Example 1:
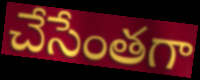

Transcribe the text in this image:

చేసేంతగా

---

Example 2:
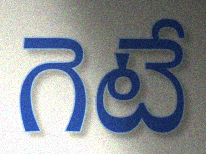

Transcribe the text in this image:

గెటే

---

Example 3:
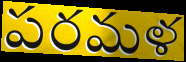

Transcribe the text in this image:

పరమళ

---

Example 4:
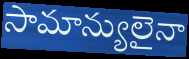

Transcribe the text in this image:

సామాన్యులైనా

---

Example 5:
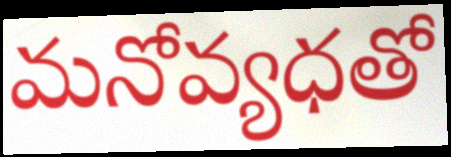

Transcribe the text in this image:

మనోవ్యధతో